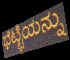
ಭೆಟ್ಟಿಯನ್ನು